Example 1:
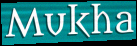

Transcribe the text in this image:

Mukha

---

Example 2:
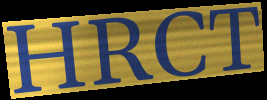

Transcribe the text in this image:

HRCT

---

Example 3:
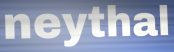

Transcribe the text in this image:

neythal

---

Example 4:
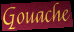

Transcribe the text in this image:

Gouache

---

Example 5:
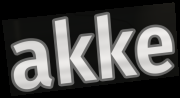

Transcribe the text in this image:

akke